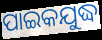
ପାଇକଯୁଦ୍ଧ